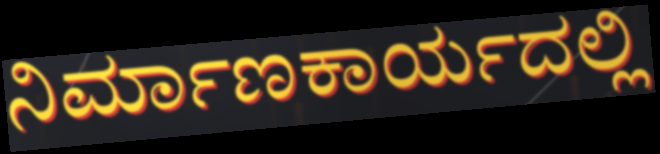
ನಿರ್ಮಾಣಕಾರ್ಯದಲ್ಲಿ